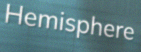
Hemisphere